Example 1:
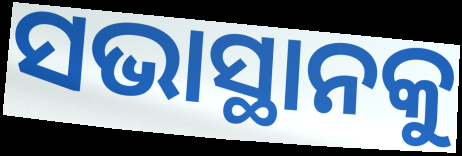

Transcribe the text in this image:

ସଭାସ୍ଥାନକୁ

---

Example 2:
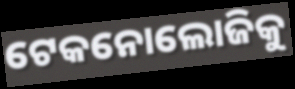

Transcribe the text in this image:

ଟେକନୋଲୋଜିକୁ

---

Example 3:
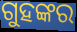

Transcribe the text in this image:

ଗୁହଙ୍କର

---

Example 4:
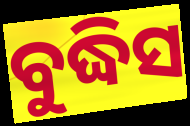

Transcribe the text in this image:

ବୁଦ୍ଧିସ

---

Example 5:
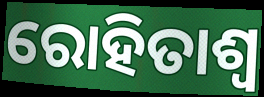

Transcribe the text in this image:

ରୋହିତାଶ୍ୱ